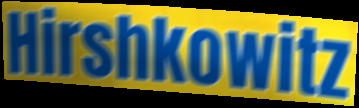
Hirshkowitz